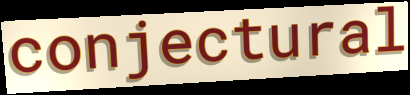
conjectural